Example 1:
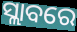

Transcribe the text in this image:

ସ୍ଲାବରେ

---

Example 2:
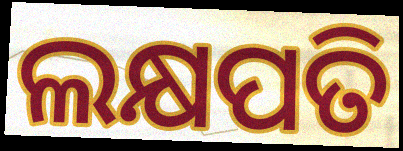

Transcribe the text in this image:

ଲକ୍ଷପତି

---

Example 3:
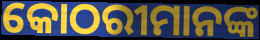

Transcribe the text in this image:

କୋଠରୀମାନଙ୍କ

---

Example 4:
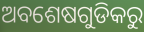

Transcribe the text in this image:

ଅବଶେଷଗୁଡିକରୁ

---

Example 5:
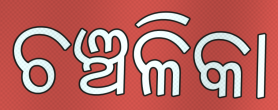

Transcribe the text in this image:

ଚଞ୍ଚଳିକା